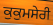
ਕੁਕੁਮਸੇਰੀ